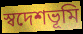
স্বদেশভূমি